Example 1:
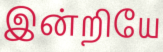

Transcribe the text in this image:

இன்றியே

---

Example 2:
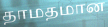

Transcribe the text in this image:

தாமதமான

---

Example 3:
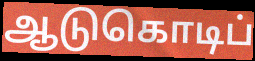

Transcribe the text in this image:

ஆடுகொடிப்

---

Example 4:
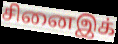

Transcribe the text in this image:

சினைஇக்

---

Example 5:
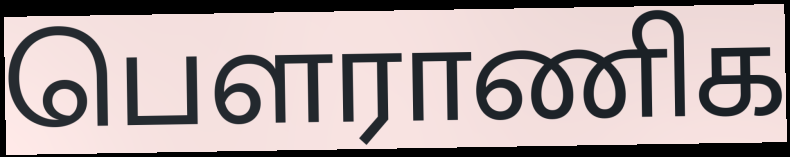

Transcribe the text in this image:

பௌராணிக